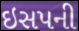
ઇસપની